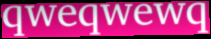
qweqwewq